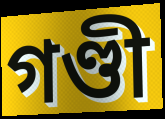
গণ্ডী